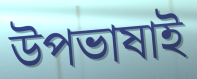
উপভাষাই